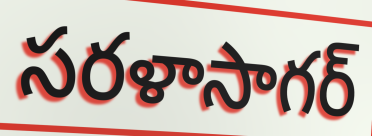
సరళాసాగర్